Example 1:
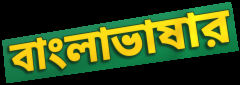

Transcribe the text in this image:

বাংলাভাষার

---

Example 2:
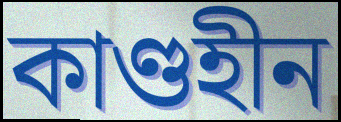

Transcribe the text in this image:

কাণ্ডহীন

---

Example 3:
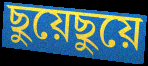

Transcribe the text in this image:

ছুয়েছুয়ে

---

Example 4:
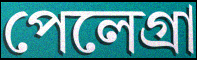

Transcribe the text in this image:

পেলেগ্রা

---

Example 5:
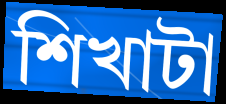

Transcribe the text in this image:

শিখাটা